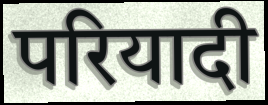
परियादी